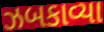
ઝબકાવ્યા